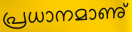
പ്രധാനമാണു്